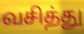
வசித்து